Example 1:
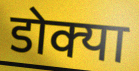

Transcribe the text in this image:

डोक्या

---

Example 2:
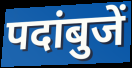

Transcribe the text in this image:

पदांबुजें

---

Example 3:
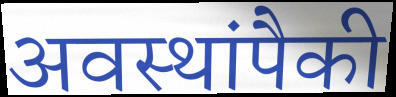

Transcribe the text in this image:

अवस्थांपैकी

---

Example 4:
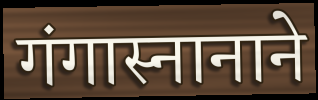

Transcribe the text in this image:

गंगास्नानाने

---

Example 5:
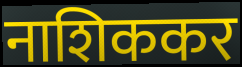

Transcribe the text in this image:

नाशिककर